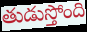
తుడుస్తోంది